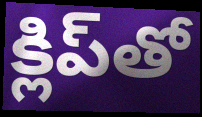
క్లిప్‌తో